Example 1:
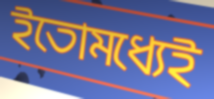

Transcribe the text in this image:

ইতোমধ্যেই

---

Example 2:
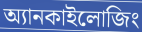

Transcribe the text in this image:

অ্যানকাইলোজিং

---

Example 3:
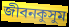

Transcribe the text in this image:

জীবনকুসুম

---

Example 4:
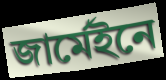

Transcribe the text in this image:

জার্মেইনে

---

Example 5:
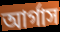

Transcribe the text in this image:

আর্গাস